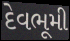
દેવભૂમી